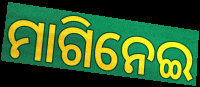
ମାଗିନେଇ